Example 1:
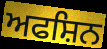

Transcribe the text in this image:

ਅਫਸ਼ਿਨ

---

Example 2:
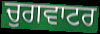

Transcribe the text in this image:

ਚੁਗਵਾਟਰ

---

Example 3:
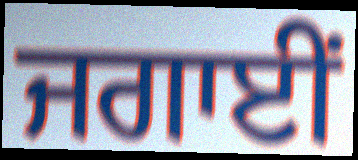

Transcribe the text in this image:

ਜਗਾਈਂ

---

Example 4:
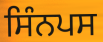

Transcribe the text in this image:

ਸਿੰਨਪਸ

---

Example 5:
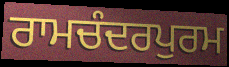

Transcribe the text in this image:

ਰਾਮਚੰਦਰਪੁਰਮ